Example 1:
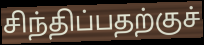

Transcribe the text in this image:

சிந்திப்பதற்குச்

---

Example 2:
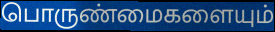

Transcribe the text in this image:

பொருண்மைகளையும்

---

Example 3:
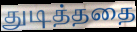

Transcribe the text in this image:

துடித்ததை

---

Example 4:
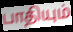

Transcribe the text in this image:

பாதியும்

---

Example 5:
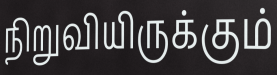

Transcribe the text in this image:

நிறுவியிருக்கும்